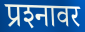
प्रश्‍नावर